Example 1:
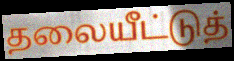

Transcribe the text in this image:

தலையீட்டுத்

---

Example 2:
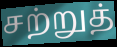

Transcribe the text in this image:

சற்றுத்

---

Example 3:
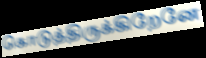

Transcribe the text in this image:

கொடுத்திருக்கிறேனே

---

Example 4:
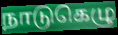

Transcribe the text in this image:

நாடுகெழு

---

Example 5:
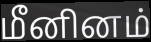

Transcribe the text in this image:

மீனினம்